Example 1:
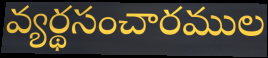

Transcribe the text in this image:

వ్యర్థసంచారముల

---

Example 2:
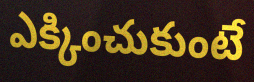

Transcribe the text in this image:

ఎక్కించుకుంటే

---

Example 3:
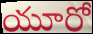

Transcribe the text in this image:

యూరో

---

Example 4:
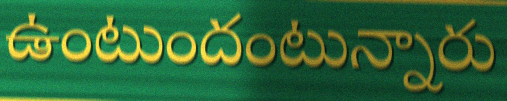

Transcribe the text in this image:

ఉంటుందంటున్నారు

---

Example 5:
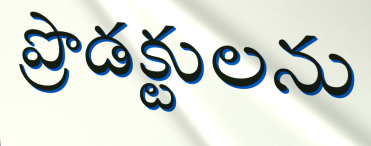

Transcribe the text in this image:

ప్రొడక్టులను